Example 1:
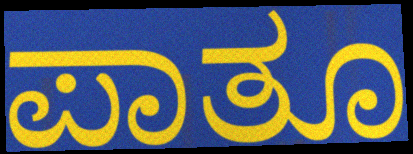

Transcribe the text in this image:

ಪಾತೂ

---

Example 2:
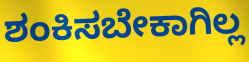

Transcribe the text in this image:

ಶಂಕಿಸಬೇಕಾಗಿಲ್ಲ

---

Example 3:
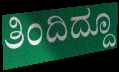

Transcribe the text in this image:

ತಿಂದಿದ್ದೂ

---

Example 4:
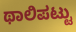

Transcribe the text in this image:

ಥಾಲಿಪಟ್ಟು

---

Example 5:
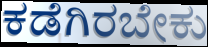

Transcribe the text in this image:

ಕಡೆಗಿರಬೇಕು